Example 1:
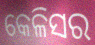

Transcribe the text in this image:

କେଳିସର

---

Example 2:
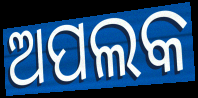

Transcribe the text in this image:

ଅପଲକ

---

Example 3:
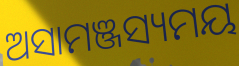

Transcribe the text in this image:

ଅସାମଞ୍ଜସ୍ୟମୟ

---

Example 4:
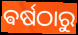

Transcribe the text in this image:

ଵର୍ଷଠାରୁ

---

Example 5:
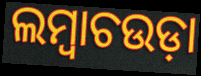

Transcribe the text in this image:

ଲମ୍ବାଚଉଡ଼ା